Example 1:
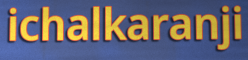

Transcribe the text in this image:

ichalkaranji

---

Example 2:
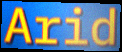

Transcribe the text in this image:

Arid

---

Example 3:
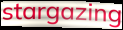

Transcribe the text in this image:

stargazing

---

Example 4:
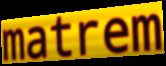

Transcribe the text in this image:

matrem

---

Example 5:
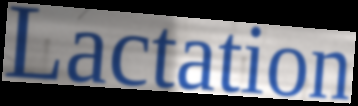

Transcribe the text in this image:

Lactation